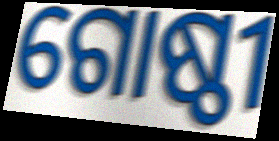
ଗୋଷ୍ଠୀ